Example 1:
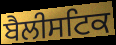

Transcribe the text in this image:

ਬੈਲੀਸਟਿਕ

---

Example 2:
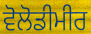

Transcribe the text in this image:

ਵੋਲੋਡੀਮੀਰ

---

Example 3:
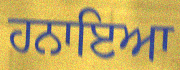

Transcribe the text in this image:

ਹਨਾਇਆ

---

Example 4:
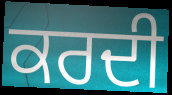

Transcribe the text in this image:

ਕਰਦੀ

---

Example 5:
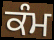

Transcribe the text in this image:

ਕੰਮ